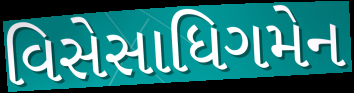
વિસેસાધિગમેન